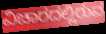
ವಿಚಾರದಲ್ಲಿರುವ